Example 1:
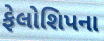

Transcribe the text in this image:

ફેલોશિપના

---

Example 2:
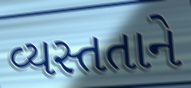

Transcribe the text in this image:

વ્યસ્તતાને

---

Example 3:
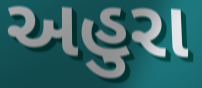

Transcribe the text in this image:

અહુરા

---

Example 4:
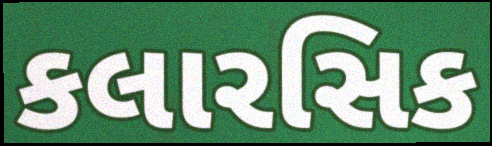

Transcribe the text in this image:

કલારસિક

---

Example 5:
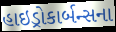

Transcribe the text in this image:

હાઇડ્રોકાર્બન્સના